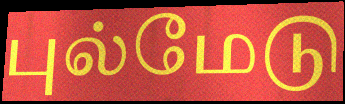
புல்மேடு